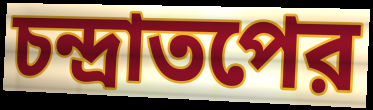
চন্দ্রাতপের